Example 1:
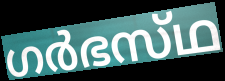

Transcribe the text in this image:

ഗർഭസ്‌ഥ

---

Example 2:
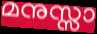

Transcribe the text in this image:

മനുസ്സാ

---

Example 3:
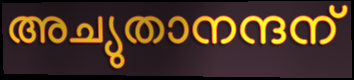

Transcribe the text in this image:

അച്യുതാനന്ദന്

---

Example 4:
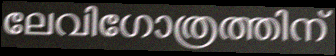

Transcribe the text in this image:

ലേവിഗോത്രത്തിന്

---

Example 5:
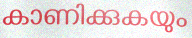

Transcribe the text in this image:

കാണിക്കുകയും